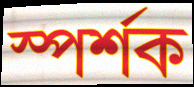
স্পর্শক